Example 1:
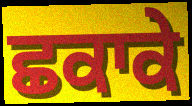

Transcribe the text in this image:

ਛਕਾਕੇ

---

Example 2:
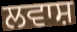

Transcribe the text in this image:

ਲਵਾਸ਼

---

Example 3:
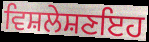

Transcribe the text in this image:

ਵਿਸ਼ਲੇਸ਼ਣਇਹ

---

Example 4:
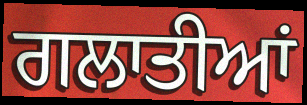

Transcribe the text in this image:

ਗਲਾਤੀਆਂ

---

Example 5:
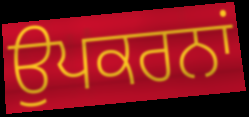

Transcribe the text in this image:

ਉਪਕਰਨਾਂ